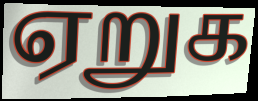
ஏறுக